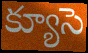
క్యూసె